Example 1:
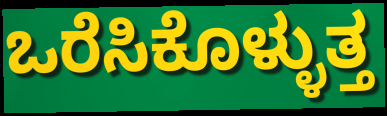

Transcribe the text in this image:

ಒರೆಸಿಕೊಳ್ಳುತ್ತ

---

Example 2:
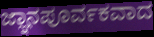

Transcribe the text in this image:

ಜ್ಞಾನಪೂರ್ವಕವಾದ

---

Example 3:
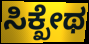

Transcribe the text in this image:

ಸಿಕ್ಖೇಥ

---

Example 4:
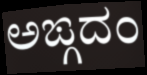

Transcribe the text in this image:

ಅಙ್ಗದಂ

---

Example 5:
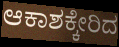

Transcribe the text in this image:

ಆಕಾಶಕ್ಕೇರಿದ